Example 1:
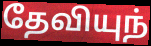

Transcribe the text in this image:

தேவியுந்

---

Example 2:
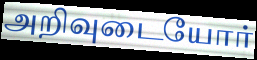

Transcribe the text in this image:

அறிவுடையோர்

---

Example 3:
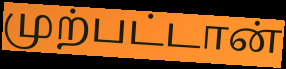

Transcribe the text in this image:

முற்பட்டான்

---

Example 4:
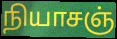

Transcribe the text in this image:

நியாசஞ்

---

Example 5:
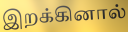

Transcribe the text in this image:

இறக்கினால்